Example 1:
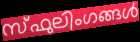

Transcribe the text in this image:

സ്ഫുലിംഗങ്ങൾ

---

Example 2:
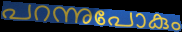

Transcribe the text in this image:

പറന്നുപോകും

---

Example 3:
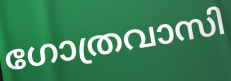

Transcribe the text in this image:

ഗോത്രവാസി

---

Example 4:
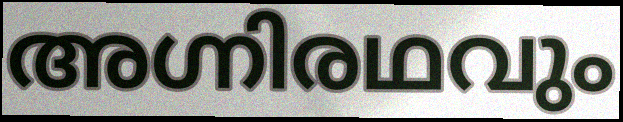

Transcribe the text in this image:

അഗ്നിരഥവും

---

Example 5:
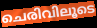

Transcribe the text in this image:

ചെരിവിലൂടെ